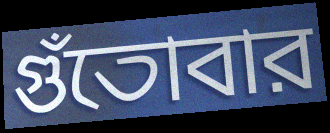
গুঁতোবার